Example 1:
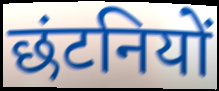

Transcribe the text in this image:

छंटनियों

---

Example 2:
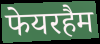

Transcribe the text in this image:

फेयरहैम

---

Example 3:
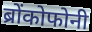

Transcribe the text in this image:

ब्रोंकोफोनी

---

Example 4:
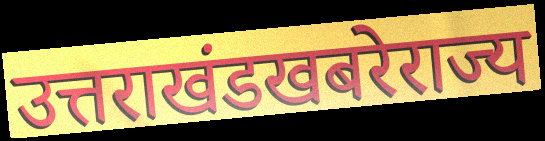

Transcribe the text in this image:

उत्तराखंडखबरेराज्य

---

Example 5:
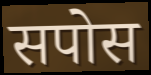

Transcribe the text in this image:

सपोस